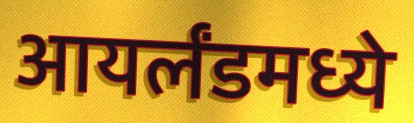
आयर्लंडमध्ये